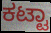
ಕಟ್ಟಾ